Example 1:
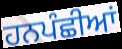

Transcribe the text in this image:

ਹਨਪੰਛੀਆਂ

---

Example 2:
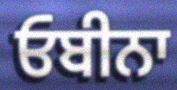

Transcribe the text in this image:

ਓਬੀਨਾ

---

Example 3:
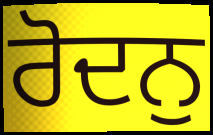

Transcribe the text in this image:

ਰੋਦਨੁ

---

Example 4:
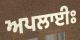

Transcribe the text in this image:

ਅਪਲਾਈਃ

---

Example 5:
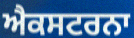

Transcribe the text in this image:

ਐਕਸਟਰਨਾ